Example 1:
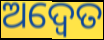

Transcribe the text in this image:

ଅଦ୍ଵେତ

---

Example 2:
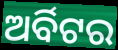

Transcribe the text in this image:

ଅର୍ବିଟର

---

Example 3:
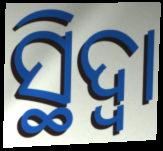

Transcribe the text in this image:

ସ୍ଥିଦ୍ଵା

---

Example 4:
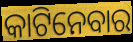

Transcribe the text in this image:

କାଟିନେବାର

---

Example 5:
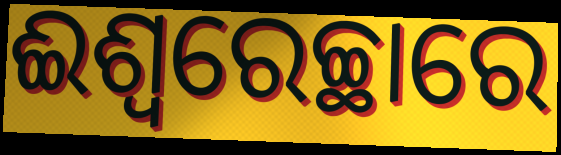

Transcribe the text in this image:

ଈଶ୍ୱରେଚ୍ଛାରେ